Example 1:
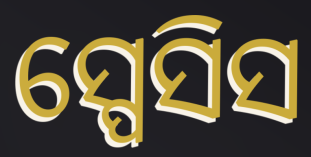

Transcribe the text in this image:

ସ୍ପେସିସ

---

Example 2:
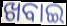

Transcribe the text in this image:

ଖବାଇ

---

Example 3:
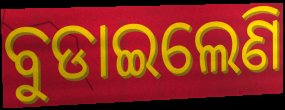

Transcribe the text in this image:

ବୁଡାଇଲେଣି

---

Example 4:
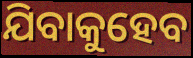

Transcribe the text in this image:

ଯିବାକୁହେବ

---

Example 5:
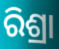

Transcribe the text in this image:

ରିଶ୍ରା